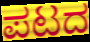
ಪಟದ